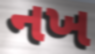
નખ